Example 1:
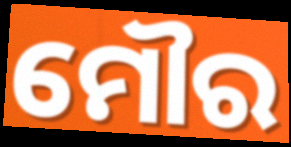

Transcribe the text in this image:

ମୌର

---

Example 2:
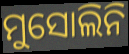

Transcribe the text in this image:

ମୁସୋଲିନି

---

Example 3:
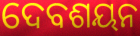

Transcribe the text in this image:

ଦେବଶୟନ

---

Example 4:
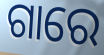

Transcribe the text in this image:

ଗାରେ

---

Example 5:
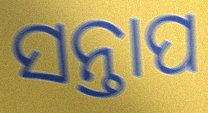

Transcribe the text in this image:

ସନ୍ତାପ